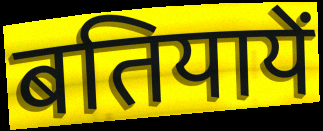
बतियायें